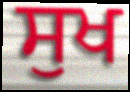
ਸੁਖ